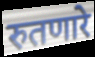
रुतणारे